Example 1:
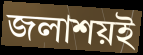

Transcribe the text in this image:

জলাশয়ই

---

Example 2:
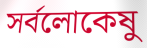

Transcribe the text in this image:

সর্বলোকেষু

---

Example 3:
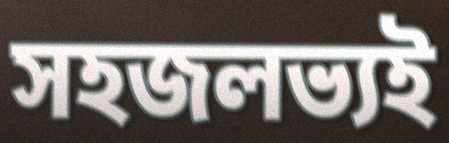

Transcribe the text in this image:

সহজলভ্যই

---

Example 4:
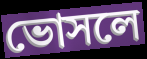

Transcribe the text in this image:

ভোসলে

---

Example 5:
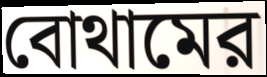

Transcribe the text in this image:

বোথামের